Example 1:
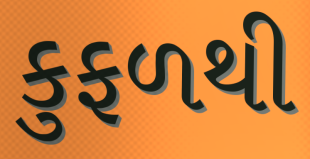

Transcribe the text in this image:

કુફળથી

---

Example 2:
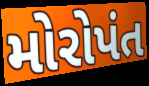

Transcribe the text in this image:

મોરોપંત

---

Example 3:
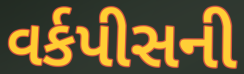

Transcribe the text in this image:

વર્કપીસની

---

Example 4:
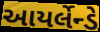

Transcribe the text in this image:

આયર્લેન્ડે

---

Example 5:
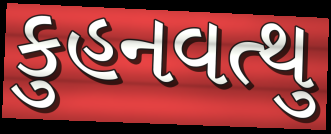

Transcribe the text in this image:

કુહનવત્થુ